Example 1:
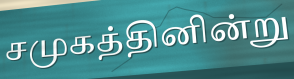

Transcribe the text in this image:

சமுகத்தினின்று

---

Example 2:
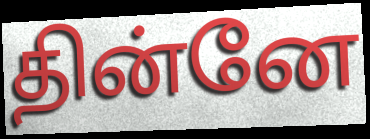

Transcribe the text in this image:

தின்னே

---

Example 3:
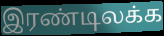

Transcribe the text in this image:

இரண்டிலக்க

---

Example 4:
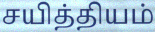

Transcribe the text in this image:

சயித்தியம்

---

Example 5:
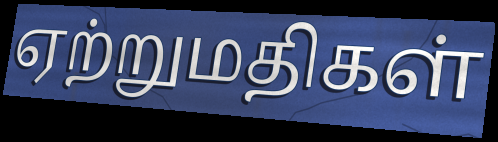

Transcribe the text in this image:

ஏற்றுமதிகள்